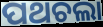
ପଥଚଲା